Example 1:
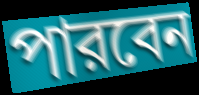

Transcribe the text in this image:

পারবেন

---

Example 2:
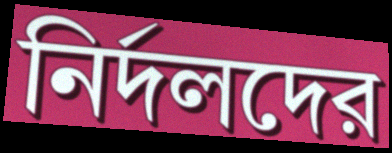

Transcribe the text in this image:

নির্দলদের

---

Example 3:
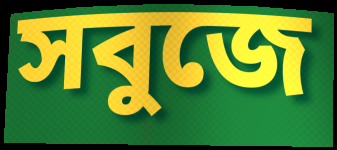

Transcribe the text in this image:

সবুজে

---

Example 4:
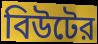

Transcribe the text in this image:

বিউটের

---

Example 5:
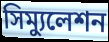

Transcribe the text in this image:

সিম্যুলেশন